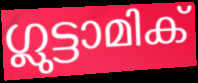
ഗ്ലുട്ടാമിക്